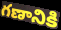
గణానికి